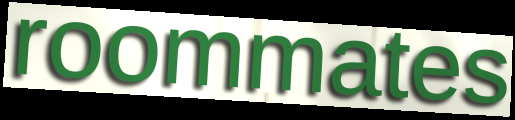
roommates